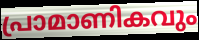
പ്രാമാണികവും